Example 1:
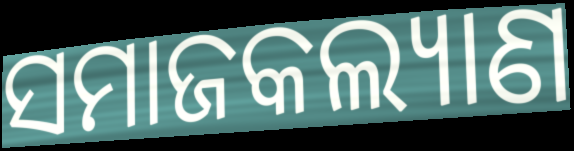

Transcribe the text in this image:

ସମାଜକଲ୍ୟାଣ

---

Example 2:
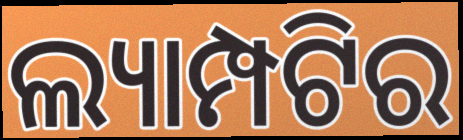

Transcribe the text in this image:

ଲ୍ୟାମ୍ପଟିର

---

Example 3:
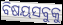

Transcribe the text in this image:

ବିଷୟସବୁକୁ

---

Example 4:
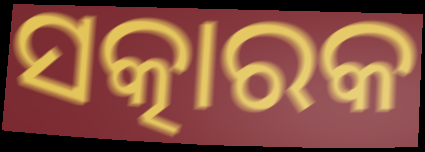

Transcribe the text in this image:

ସତ୍କାରକ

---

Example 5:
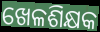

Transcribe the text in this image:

ଖେଳଶିକ୍ଷକ